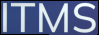
ITMS